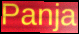
Panja